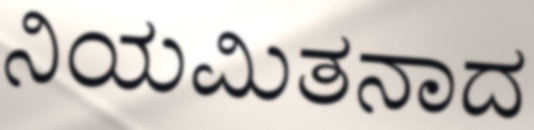
ನಿಯಮಿತನಾದ